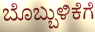
ಬೊಬ್ಬುಳಿಕೆಗೆ